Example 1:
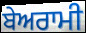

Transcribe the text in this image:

ਬੇਅਰਾਮੀ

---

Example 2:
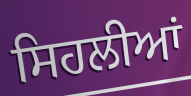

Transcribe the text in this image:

ਸਿਹਲੀਆਂ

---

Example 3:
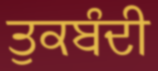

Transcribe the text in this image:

ਤੁਕਬੰਦੀ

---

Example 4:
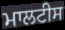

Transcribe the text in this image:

ਮਾਲਟੀਸ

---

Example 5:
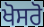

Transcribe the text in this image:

ਖੋਸਰੋ